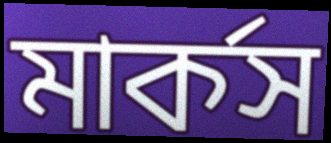
মার্কস